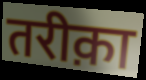
तरीक़ा